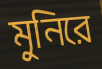
মুনিরে